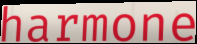
harmone